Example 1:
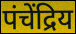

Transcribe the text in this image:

पंचेंद्रिय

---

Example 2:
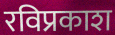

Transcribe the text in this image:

रविप्रकाश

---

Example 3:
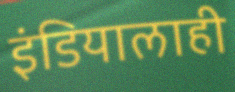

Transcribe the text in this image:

इंडियालाही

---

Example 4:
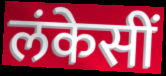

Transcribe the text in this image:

लंकेसीं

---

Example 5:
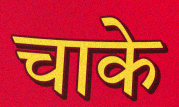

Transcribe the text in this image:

चाके